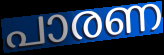
പാരണ